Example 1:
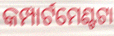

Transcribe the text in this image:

କମ୍ପାର୍ଟମେଣ୍ଟଟା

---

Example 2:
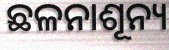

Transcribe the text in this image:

ଛଳନାଶୂନ୍ୟ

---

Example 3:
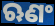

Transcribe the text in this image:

ଋଣଂ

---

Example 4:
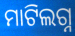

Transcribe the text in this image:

ମାଟିଲଗ୍ନ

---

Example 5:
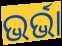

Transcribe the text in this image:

ଭର୍ଭା